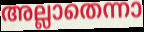
അല്ലാതെന്നാ